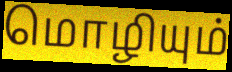
மொழியும்